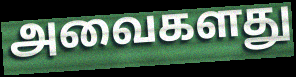
அவைகளது